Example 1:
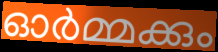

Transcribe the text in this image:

ഓർമ്മക്കും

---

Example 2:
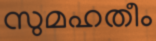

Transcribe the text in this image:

സുമഹതീം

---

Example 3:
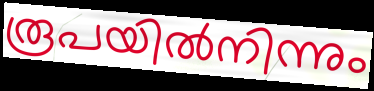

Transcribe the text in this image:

രൂപയിൽനിന്നും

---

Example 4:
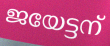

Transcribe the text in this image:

ജയേട്ടന്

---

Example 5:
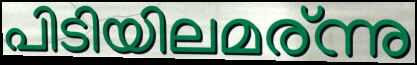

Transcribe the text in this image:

പിടിയിലമര്ന്നു